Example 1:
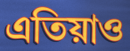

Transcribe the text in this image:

এতিয়াও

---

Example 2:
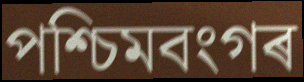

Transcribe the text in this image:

পশ্চিমবংগৰ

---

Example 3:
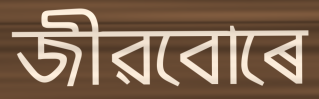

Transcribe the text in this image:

জীৱবোৰে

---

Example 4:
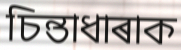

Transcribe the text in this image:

চিন্তাধাৰাক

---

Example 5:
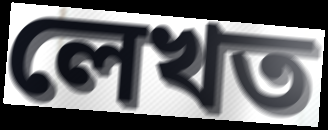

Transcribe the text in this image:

লেখত